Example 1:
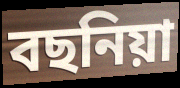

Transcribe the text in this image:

বছনিয়া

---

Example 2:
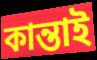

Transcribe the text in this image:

কান্তাই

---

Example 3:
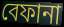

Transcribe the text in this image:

বেফানা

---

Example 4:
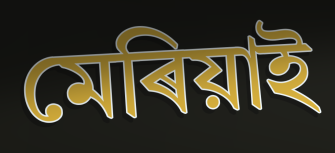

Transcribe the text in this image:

মেৰিয়াই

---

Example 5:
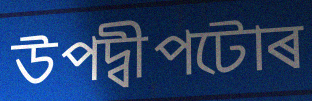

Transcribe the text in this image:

উপদ্বীপটোৰ